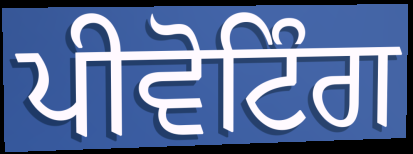
ਪੀਵੋਟਿੰਗ